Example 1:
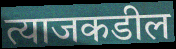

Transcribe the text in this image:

त्याजकडील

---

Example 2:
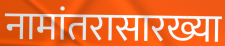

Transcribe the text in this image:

नामांतरासारख्या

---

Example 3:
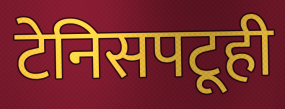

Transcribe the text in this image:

टेनिसपटूही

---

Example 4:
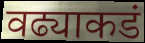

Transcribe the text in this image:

वढ्याकडं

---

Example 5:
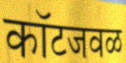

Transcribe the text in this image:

कॉटजवळ